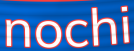
nochi